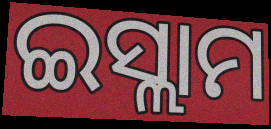
ଇସ୍ଲାମ